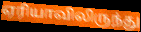
ஏரியாவிலிருந்து